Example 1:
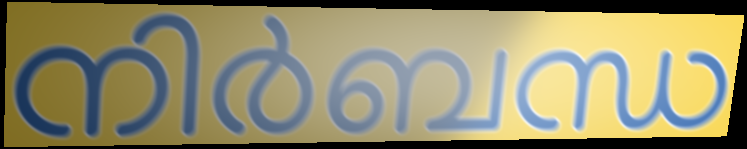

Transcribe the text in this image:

നിർബന്ധ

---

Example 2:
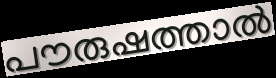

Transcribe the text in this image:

പൗരുഷത്താൽ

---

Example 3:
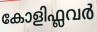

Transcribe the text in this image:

കോളിഫ്ലവർ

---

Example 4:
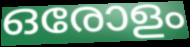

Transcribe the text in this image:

ഒരോളം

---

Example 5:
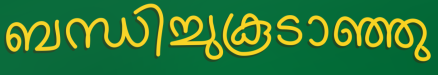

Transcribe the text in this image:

ബന്ധിച്ചുകൂടാഞ്ഞു